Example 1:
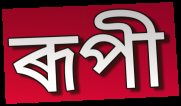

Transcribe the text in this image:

ৰূপী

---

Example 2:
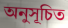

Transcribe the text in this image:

অনুসূচিত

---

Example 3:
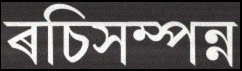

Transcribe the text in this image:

ৰচিসম্পন্ন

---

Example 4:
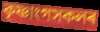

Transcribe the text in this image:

কৃষ্ণাংগসকলৰ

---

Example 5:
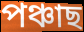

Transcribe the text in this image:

পঞ্চাছ